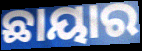
ଛାୟାର